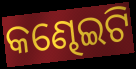
କଣ୍ଢେଇଟି